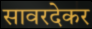
सावरदेकर